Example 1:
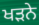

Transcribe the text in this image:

ਖੜਨੇ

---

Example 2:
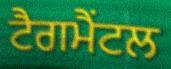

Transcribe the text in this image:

ਟੈਗਮੈਂਟਲ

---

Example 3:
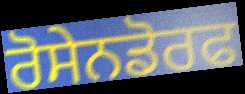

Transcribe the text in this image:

ਰੋਸੇਨਡੋਰਫ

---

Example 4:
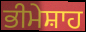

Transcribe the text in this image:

ਭੀਮੇਸ਼ਾਹ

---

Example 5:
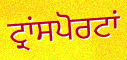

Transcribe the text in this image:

ਟ੍ਰਾਂਸਪੋਰਟਾਂ